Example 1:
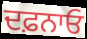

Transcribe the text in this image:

ਦਫ਼ਨਾਓ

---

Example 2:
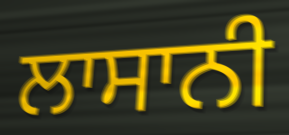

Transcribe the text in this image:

ਲਾਸਾਨੀ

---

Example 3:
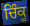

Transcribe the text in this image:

ਚਿੰਕੂ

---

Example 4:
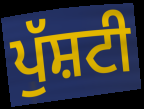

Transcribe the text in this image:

ਪੁੱਸ਼ਟੀ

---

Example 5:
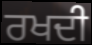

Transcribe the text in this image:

ਰਖਦੀ